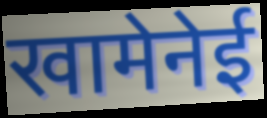
खामेनेई